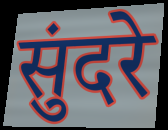
सुंदरे